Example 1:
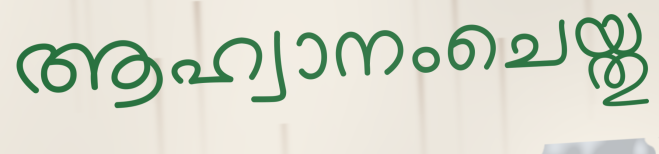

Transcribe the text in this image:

ആഹ്വാനംചെയ്തു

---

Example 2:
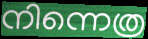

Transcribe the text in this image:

നിന്നെത്ര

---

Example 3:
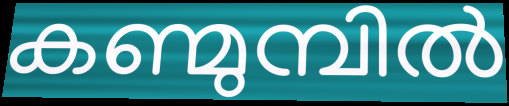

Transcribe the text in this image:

കണ്മുമ്പിൽ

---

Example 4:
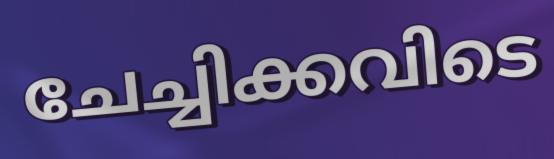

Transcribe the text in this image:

ചേച്ചിക്കവിടെ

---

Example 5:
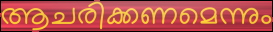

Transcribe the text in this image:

ആചരിക്കണമെന്നും